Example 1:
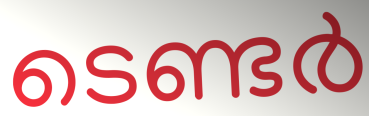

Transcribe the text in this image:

ടെണ്ടർ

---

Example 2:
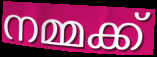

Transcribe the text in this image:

നമ്മക്ക്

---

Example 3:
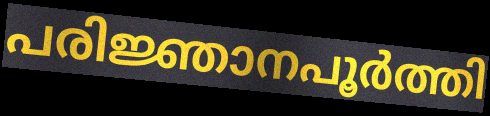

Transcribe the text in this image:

പരിജ്ഞാനപൂർത്തി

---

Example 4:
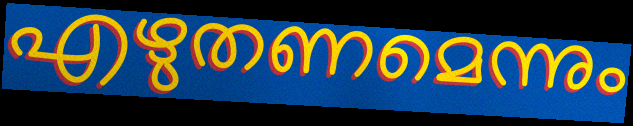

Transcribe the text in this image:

എഴുതണമെന്നും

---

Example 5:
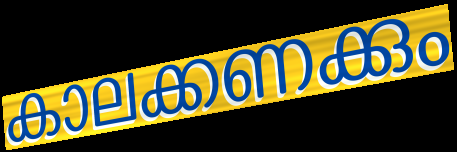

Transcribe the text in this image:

കാലക്കണക്കും